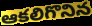
ఆకలిగొనిన